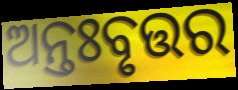
ଅନ୍ତଃବୃତ୍ତର